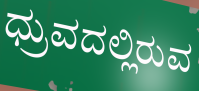
ಧ್ರುವದಲ್ಲಿರುವ